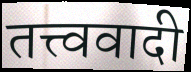
तत्त्ववादी